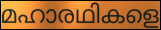
മഹാരഥികളെ